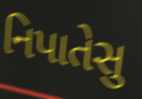
નિપાતેસુ